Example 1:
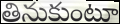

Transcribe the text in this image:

తినుకుంటూ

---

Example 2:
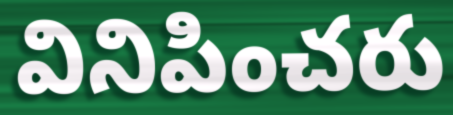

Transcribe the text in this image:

వినిపించరు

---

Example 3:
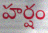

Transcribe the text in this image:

హర్షం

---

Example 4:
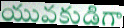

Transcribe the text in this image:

యువకుడిగా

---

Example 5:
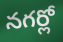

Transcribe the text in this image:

నగర్లో